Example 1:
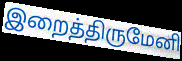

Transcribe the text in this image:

இறைத்திருமேனி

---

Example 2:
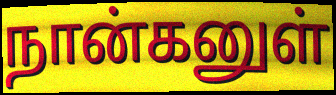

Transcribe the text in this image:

நான்கனுள்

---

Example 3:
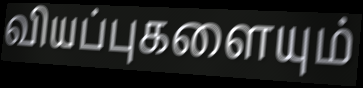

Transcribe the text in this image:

வியப்புகளையும்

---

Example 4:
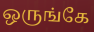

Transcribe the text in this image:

ஒருங்கே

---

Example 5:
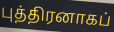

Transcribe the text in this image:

புத்திரனாகப்